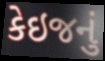
કેઇજનું